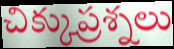
చిక్కుప్రశ్నలు